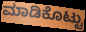
ಮಾಡಿಕೊಟ್ಟು